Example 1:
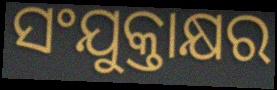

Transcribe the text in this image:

ସଂଯୁକ୍ତାକ୍ଷର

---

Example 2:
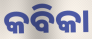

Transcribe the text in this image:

କବିକା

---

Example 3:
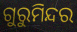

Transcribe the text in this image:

ଗୁରୁମିନ୍ଦର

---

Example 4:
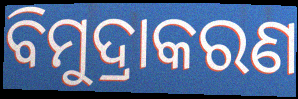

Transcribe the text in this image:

ବିମୁଦ୍ରାକରଣ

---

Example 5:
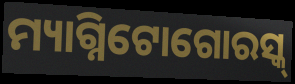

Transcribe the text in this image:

ମ୍ୟାଗ୍ନିଟୋଗୋରସ୍କ୍